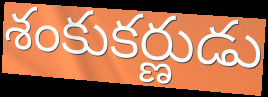
శంకుకర్ణుడు